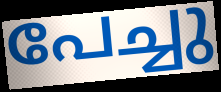
പേച്ചു